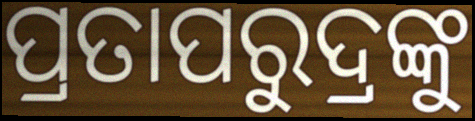
ପ୍ରତାପରୁଦ୍ରଙ୍କୁ